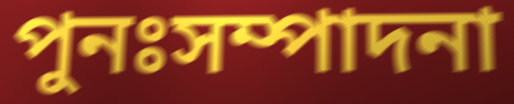
পুনঃসম্পাদনা